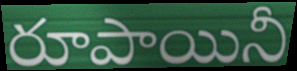
రూపాయినీ